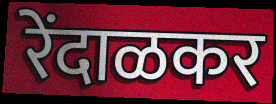
रेंदाळकर